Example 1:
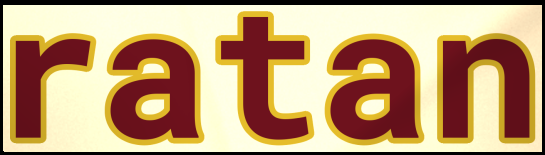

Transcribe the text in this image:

ratan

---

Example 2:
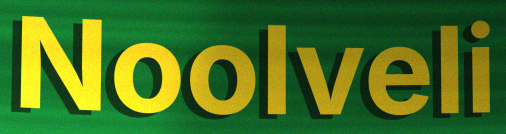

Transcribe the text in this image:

Noolveli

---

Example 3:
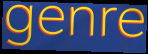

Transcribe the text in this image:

genre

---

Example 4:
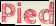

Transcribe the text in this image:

Pied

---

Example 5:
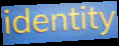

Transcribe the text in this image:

identity